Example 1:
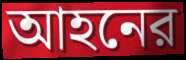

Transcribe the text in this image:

আহনের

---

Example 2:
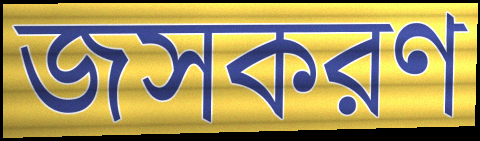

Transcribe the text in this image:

জসকরণ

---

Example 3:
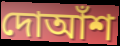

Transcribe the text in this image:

দোআঁশ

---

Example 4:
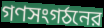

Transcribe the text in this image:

গণসংগঠনের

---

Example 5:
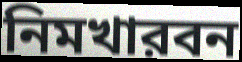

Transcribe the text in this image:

নিমখারবন